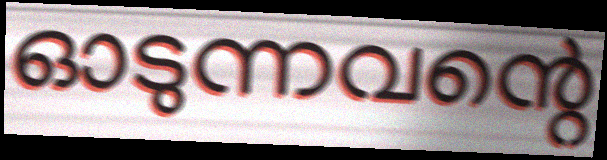
ഓടുന്നവന്റെ